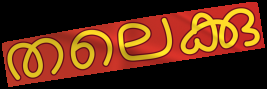
തലെക്കു